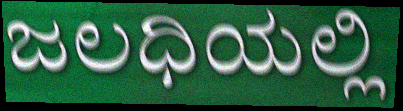
ಜಲಧಿಯಲ್ಲಿ